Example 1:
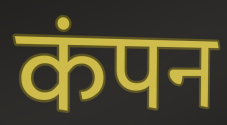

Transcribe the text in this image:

कंपन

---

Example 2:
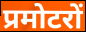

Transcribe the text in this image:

प्रमोटरों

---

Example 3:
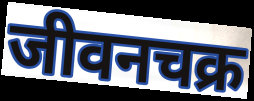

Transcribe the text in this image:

जीवनचक्र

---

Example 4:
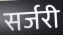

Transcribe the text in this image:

सर्जरी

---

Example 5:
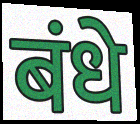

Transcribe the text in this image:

बंधे